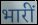
भारीं